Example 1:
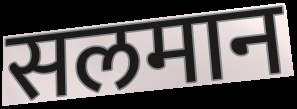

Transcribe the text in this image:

सलमान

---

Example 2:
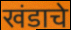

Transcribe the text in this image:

खंडाचे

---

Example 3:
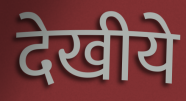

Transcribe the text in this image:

देखीये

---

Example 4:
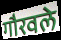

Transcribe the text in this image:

गौरवले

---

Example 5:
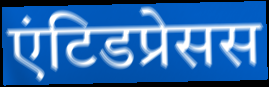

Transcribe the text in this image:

एंटिडप्रेसस